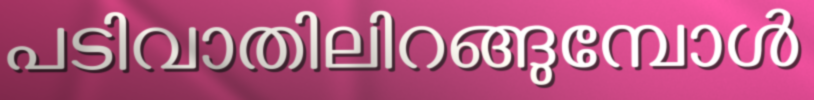
പടിവാതിലിറങ്ങുമ്പോൾ